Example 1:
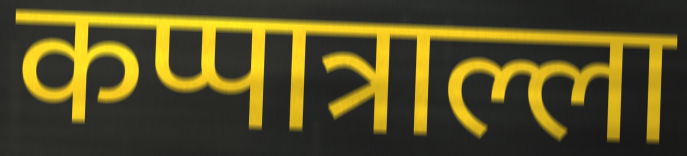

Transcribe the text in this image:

कप्पात्राल्ला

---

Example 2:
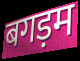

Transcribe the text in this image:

बगड़म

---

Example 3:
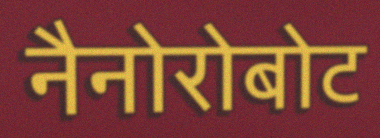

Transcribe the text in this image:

नैनोरोबोट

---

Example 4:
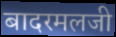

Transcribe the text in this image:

बादरमलजी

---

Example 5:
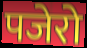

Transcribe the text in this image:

पजेरो